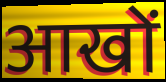
आखों